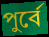
পুর্বে